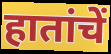
हातांचें